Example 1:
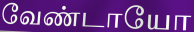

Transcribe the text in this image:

வேண்டாயோ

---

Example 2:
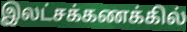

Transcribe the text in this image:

இலட்சக்கணக்கில்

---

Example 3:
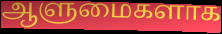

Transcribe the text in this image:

ஆளுமைகளாக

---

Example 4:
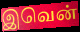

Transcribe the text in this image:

இவென்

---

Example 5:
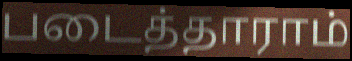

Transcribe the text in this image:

படைத்தாராம்